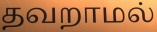
தவறாமல்